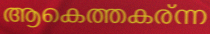
ആകെത്തകര്ന്ന